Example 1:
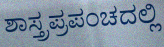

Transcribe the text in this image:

ಶಾಸ್ತ್ರಪ್ರಪಂಚದಲ್ಲಿ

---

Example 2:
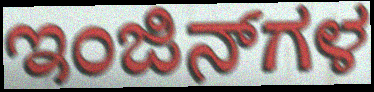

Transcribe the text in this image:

ಇಂಜಿನ್‌ಗಳ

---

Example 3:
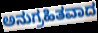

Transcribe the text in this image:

ಅನುಗ್ರಹಿತವಾದ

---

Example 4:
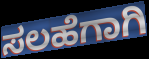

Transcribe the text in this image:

ಸಲಹೆಗಾಗಿ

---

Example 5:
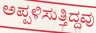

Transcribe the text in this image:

ಅಪ್ಪಳಿಸುತ್ತಿದ್ದವು